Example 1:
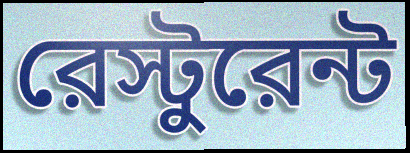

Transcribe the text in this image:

রেস্টুরেন্ট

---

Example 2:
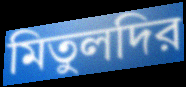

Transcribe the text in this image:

মিতুলদির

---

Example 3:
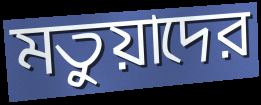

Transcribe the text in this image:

মতুয়াদের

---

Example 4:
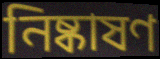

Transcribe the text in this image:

নিষ্কাষণ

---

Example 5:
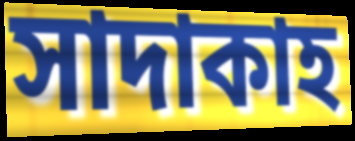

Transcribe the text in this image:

সাদাকাহ